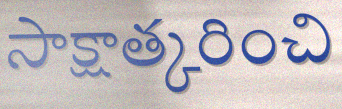
సాక్షాత్కరించి